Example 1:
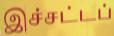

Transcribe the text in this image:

இச்சட்டப்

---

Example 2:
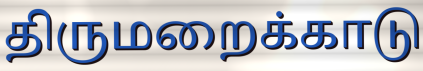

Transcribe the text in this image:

திருமறைக்காடு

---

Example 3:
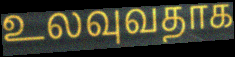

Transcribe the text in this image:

உலவுவதாக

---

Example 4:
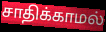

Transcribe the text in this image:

சாதிக்காமல்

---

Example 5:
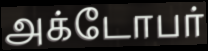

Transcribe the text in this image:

அக்டோபர்